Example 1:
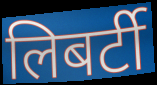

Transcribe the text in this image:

लिबर्टी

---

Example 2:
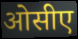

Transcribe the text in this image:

ओसीए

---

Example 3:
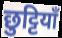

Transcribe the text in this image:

छुट्टियाँ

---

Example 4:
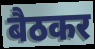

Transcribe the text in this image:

बैठकर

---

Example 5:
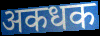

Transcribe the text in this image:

अकधक